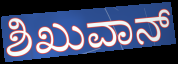
ಶಿಖುವಾನ್